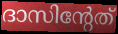
ദാസിന്റേത്